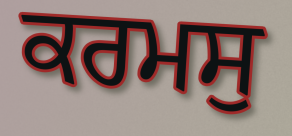
ਕਰਮਸੁ